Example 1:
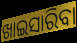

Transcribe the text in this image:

ଖାଇସାରିବା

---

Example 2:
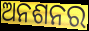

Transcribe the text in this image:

ଅନଶନର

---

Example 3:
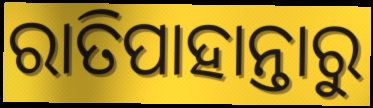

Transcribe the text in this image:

ରାତିପାହାନ୍ତାରୁ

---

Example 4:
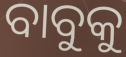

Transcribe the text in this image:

ବାବୁକୁ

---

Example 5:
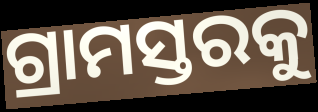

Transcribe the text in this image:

ଗ୍ରାମସ୍ତରକୁ